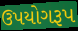
ઉપયોગરૂપ